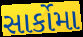
સાર્કોમા